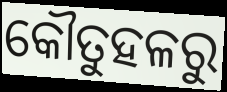
କୌତୁହଳରୁ